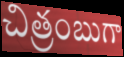
చిత్రంబుగా